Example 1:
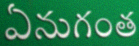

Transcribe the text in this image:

ఏనుగంత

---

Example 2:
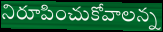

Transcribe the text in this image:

నిరూపించుకోవాలన్న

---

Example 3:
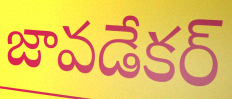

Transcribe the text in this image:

జావడేకర్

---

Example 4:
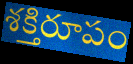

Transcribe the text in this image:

శక్తిరూపం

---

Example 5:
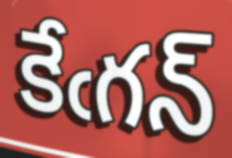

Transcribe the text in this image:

కేఁగన్